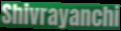
Shivrayanchi